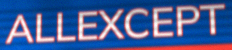
ALLEXCEPT